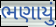
ભણાયું